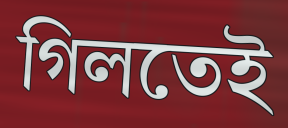
গিলতেই